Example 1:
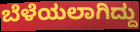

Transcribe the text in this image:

ಬೆಳೆಯಲಾಗಿದ್ದು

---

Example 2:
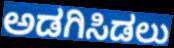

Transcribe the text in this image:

ಅಡಗಿಸಿಡಲು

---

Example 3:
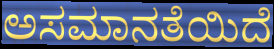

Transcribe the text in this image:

ಅಸಮಾನತೆಯಿದೆ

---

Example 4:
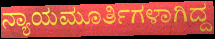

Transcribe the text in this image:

ನ್ಯಾಯಮೂರ್ತಿಗಳಾಗಿದ್ದ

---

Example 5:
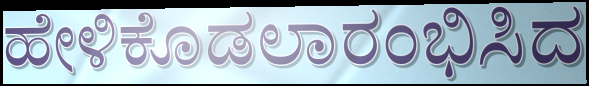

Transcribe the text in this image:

ಹೇಳಿಕೊಡಲಾರಂಭಿಸಿದ